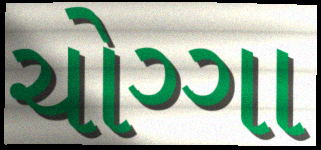
ચોગ્ગા